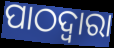
ପାଠଦ୍ଵାରା